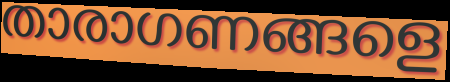
താരാഗണങ്ങളെ